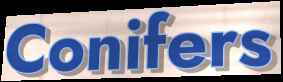
Conifers